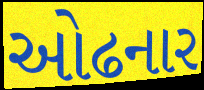
ઓઢનાર